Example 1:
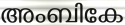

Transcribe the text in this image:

അംബികേ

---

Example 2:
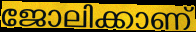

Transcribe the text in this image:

ജോലിക്കാണ്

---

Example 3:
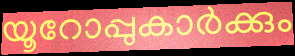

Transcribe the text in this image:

യൂറോപ്പുകാർക്കും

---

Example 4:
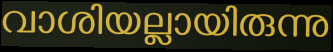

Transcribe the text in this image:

വാശിയല്ലായിരുന്നു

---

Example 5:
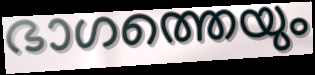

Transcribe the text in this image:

ഭാഗത്തെയും